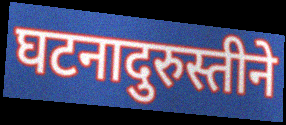
घटनादुरुस्तीने